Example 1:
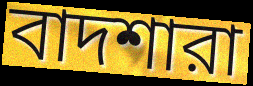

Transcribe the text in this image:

বাদশারা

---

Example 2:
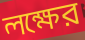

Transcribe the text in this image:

লক্ষের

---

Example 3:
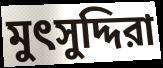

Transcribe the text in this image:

মুৎসুদ্দিরা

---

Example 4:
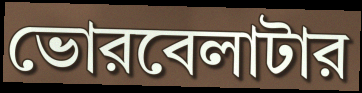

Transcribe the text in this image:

ভোরবেলাটার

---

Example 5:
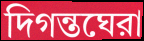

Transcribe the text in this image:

দিগন্তঘেরা